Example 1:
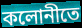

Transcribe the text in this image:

কলোনীতে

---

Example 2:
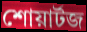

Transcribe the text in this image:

শোয়ার্টজ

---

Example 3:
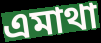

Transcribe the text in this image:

এমাথা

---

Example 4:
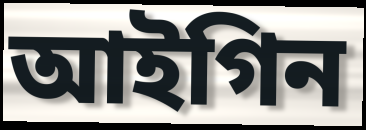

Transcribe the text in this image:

আইগিন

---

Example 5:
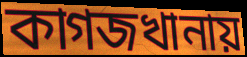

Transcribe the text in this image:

কাগজখানায়